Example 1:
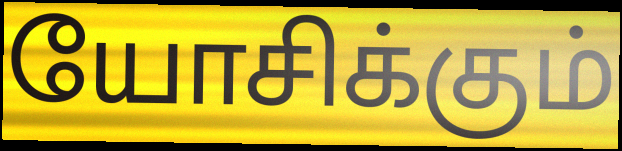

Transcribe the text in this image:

யோசிக்கும்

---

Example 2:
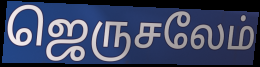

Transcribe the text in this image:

ஜெருசலேம்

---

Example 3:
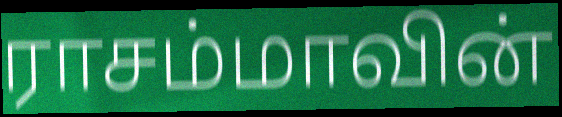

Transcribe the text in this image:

ராசம்மாவின்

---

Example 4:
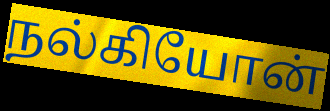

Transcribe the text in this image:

நல்கியோன்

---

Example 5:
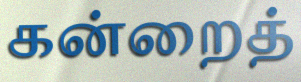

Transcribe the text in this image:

கன்றைத்